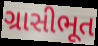
ગ્રાસીભૂત